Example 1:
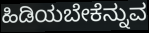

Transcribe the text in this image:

ಹಿಡಿಯಬೇಕೆನ್ನುವ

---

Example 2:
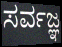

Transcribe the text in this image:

ಸರ್ವಜ್ಞ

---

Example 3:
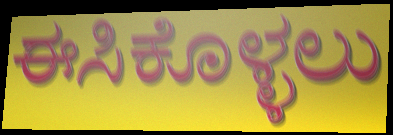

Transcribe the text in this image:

ಈಸಿಕೊಳ್ಳಲು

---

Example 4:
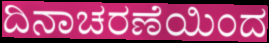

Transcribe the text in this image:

ದಿನಾಚರಣೆಯಿಂದ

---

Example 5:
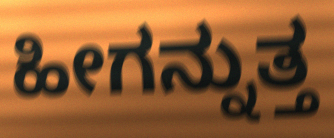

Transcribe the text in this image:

ಹೀಗನ್ನುತ್ತ